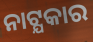
ନାଟ୍ଯକାର